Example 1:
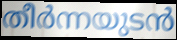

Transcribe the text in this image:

തീർന്നയുടൻ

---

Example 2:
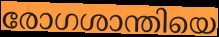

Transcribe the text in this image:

രോഗശാന്തിയെ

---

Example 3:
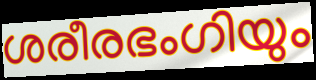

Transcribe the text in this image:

ശരീരഭംഗിയും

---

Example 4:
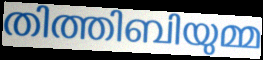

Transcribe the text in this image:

തിത്തിബിയുമ്മ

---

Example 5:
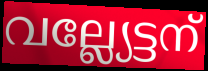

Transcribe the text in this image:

വല്ല്യേട്ടന്